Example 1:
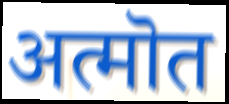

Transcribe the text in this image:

अत्मॊत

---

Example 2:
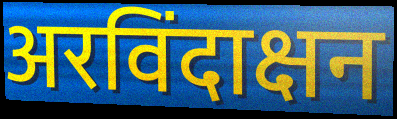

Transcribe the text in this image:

अरविंदाक्षन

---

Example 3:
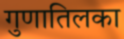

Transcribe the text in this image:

गुणातिलका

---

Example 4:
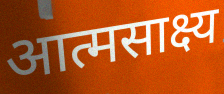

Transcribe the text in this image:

आत्मसाक्ष्य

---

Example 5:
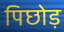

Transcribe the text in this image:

पिछोड़